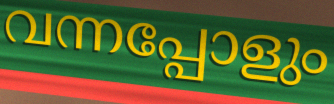
വന്നപ്പോളും